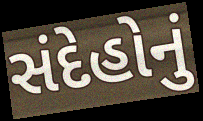
સંદેહોનું